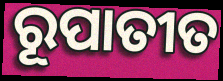
ରୂପାତୀତ